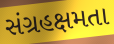
સંગ્રહક્ષમતા